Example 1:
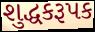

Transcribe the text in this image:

શુદ્ધકરૂપક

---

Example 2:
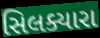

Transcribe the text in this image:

સિલક્યારા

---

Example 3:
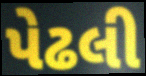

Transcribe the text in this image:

પેઢલી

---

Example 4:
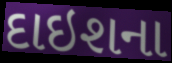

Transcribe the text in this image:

દાઇશના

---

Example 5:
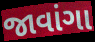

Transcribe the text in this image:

જાવાંગા